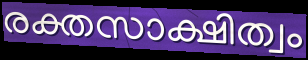
രക്തസാക്ഷിത്വം